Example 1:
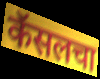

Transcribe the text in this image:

कॅसलचा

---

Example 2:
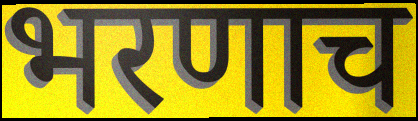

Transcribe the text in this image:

भरणाच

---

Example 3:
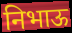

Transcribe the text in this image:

निभाऊ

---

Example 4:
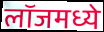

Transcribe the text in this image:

लॉजमध्ये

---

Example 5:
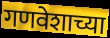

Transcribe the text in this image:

गणवेशाच्या